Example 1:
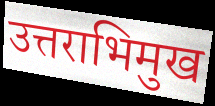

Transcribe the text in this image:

उत्तराभिमुख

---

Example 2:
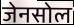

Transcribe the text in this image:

जेनसोल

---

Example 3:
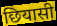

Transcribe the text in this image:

छियासी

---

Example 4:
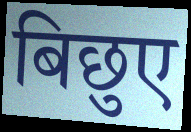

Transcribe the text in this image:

बिछुए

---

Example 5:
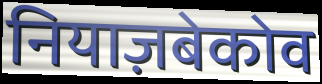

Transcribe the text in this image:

नियाज़बेकोव